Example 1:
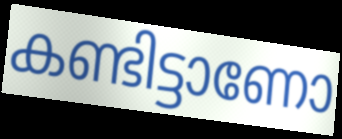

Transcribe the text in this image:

കണ്ടിട്ടാണോ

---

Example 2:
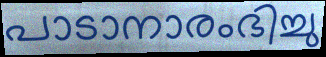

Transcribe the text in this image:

പാടാനാരംഭിച്ചു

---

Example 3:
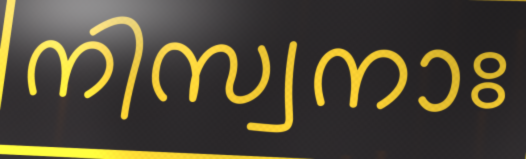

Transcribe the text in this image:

നിസ്വനാഃ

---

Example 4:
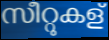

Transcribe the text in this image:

സീറ്റുകള്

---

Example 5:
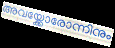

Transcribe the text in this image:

അവയ്ക്കോരോന്നിനും